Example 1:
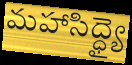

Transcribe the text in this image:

మహాసిద్ధ్యై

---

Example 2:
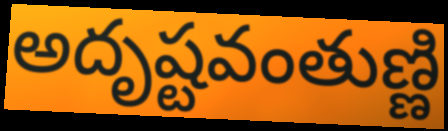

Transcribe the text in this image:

అదృష్టవంతుణ్ణి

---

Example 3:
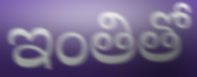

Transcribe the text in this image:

ఇంతితో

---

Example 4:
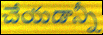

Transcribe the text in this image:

చేయడాన్నీ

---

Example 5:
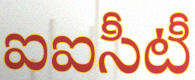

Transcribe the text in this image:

ఐఐసీటీ